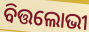
ବିତ୍ତଲୋଭୀ